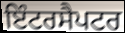
ਇੰਟਰਸੈਪਟਰ